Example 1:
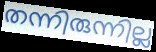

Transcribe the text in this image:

തന്നിരുന്നില്ല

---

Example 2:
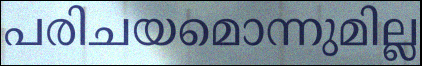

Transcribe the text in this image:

പരിചയമൊന്നുമില്ല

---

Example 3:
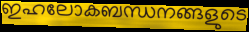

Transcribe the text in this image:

ഇഹലോകബന്ധനങ്ങളുടെ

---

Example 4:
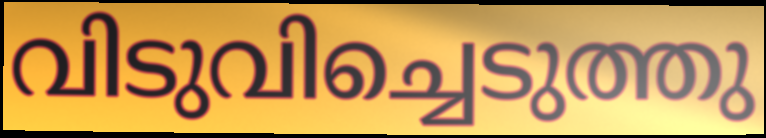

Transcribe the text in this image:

വിടുവിച്ചെടുത്തു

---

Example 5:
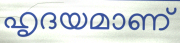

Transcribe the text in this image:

ഹൃദയമാണ്